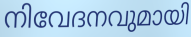
നിവേദനവുമായി